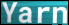
Yarn